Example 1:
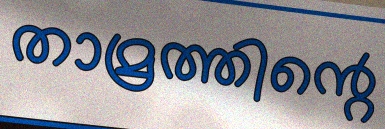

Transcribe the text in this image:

താമ്രത്തിന്റെ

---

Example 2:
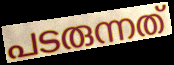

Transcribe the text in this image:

പടരുന്നത്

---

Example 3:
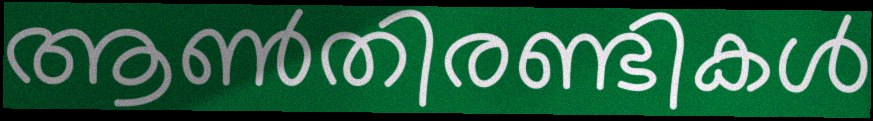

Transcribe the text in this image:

ആൺതിരണ്ടികൾ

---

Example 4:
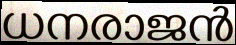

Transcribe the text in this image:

ധനരാജൻ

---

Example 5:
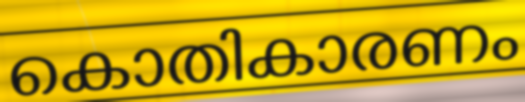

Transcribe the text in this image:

കൊതികാരണം